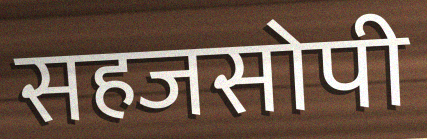
सहजसोपी